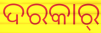
ଦରକାର୍